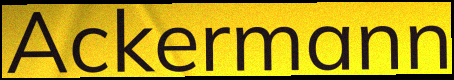
Ackermann